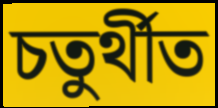
চতুৰ্থীত